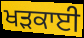
ਖੜਕਾਈ